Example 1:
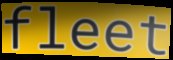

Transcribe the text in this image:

fleet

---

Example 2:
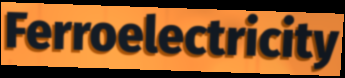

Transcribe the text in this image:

Ferroelectricity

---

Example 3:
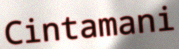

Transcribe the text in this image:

Cintamani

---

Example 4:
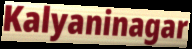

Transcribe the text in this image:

Kalyaninagar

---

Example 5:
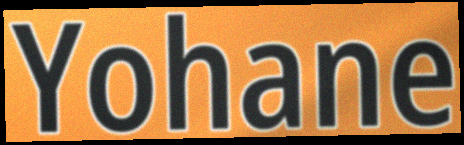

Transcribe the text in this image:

Yohane